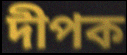
দীপক